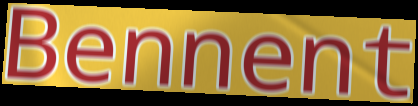
Bennent